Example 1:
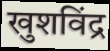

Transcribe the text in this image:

खुशविंद्र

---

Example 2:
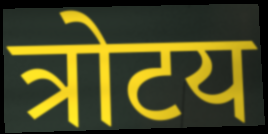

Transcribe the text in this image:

त्रोटय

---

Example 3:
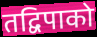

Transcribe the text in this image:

तद्विपाको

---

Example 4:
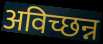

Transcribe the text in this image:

अविच्छन्न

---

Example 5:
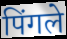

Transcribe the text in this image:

पिंगले